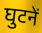
घुटनें